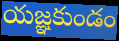
యజ్ఞకుండం